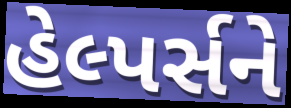
હેલ્પર્સને